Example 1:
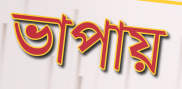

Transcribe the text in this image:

ভাপায়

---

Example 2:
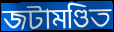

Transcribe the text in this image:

জটামণ্ডিত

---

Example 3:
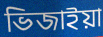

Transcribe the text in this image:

ভিজাইয়া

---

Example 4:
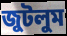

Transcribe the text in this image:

জুটলুম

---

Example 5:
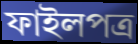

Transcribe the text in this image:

ফাইলপত্র